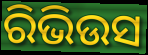
ରିଭିଉସ